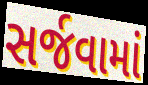
સર્જવામાં